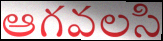
ఆగవలసి